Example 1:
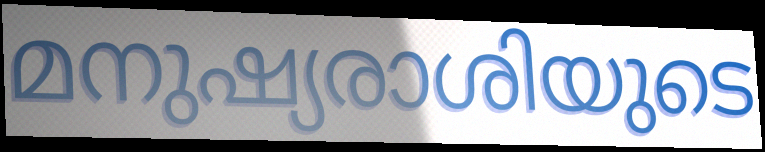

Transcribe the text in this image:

മനുഷ്യരാശിയുടെ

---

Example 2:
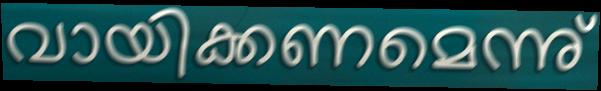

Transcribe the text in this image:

വായിക്കണമെന്നു്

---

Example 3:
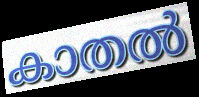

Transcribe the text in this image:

കാതൽ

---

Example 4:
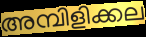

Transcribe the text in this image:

അമ്പിളിക്കല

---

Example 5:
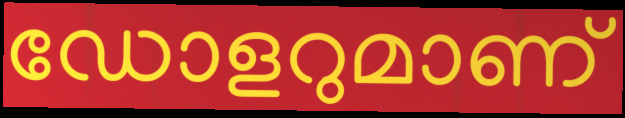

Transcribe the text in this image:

ഡോളറുമാണ്